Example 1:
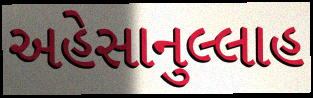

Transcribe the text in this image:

અહેસાનુલ્લાહ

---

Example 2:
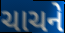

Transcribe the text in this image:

ચાચને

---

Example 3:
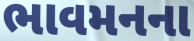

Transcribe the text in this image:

ભાવમનના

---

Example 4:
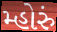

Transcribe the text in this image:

મ્હોરું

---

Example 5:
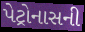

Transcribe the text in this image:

પેટ્રોનાસની